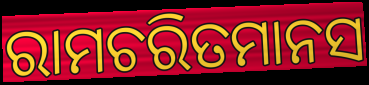
ରାମଚରିତମାନସ